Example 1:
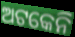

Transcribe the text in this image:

ଅଟକେନି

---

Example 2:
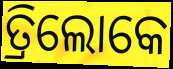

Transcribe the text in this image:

ତ୍ରିଲୋକେ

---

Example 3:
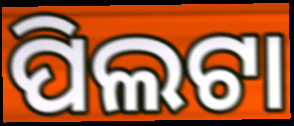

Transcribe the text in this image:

ପିଲଟା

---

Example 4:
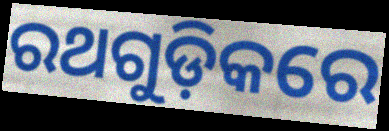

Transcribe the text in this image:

ରଥଗୁଡ଼ିକରେ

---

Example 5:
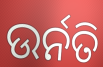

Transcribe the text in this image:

ଉର୍ନତି